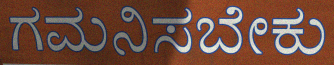
ಗಮನಿಸಬೇಕು